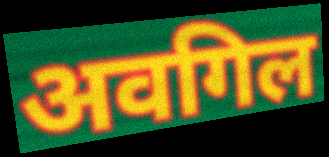
अवगिल